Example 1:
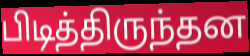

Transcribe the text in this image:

பிடித்திருந்தன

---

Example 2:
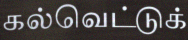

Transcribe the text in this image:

கல்வெட்டுக்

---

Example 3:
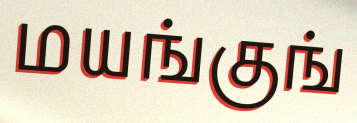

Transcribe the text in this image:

மயங்குங்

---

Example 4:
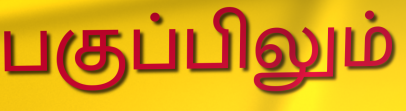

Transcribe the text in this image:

பகுப்பிலும்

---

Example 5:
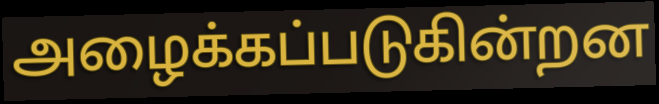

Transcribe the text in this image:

அழைக்கப்படுகின்றன